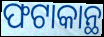
ଫଟାକାନ୍ଥ